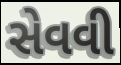
સેવવી